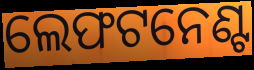
ଲେଫଟନେଣ୍ଟ